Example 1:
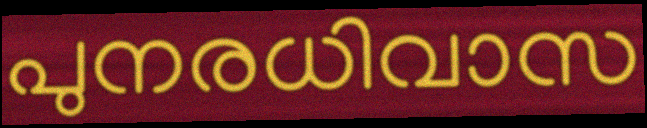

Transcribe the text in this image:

പുനരധിവാസ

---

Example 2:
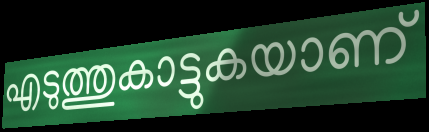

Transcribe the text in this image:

എടുത്തുകാട്ടുകയാണ്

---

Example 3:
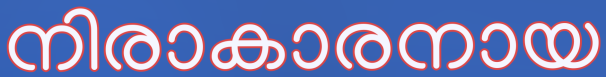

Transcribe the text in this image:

നിരാകാരനായ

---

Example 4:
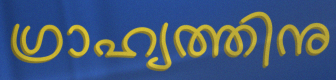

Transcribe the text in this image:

ഗ്രാഹ്യത്തിനു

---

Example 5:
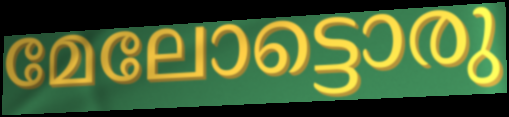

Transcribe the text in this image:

മേലോട്ടൊരു